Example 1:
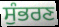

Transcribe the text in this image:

ਸੁੰਭਰਣ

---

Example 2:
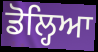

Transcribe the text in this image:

ਡੋਲ੍ਹਿਆ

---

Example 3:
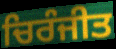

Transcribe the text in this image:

ਚਿਰੰਜੀਤ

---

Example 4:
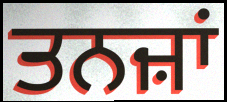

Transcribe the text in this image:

ਤਨਜ਼ਾਂ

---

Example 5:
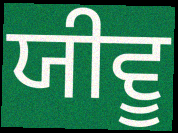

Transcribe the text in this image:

ਯੀਵੂ